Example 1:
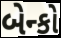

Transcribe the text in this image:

બેન્કો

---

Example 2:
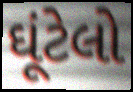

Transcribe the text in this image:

ઘૂંટેલો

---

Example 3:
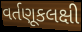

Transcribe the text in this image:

વર્તણૂકલક્ષી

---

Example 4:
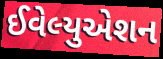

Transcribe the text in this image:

ઈવેલ્યુએશન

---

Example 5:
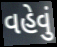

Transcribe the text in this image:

વહેવું